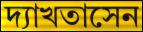
দ্যাখতাসেন